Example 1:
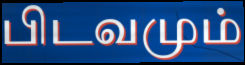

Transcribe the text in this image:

பிடவமும்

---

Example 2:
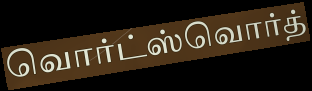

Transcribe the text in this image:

வொர்ட்ஸ்வொர்த்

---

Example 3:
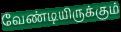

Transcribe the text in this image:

வேண்டியிருக்கும்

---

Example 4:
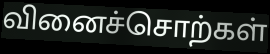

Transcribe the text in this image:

வினைச்சொற்கள்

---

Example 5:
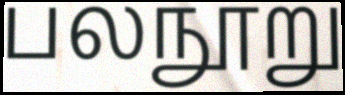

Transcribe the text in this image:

பலநூறு